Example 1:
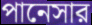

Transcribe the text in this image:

পানেসার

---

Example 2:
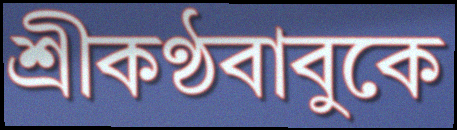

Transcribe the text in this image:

শ্রীকণ্ঠবাবুকে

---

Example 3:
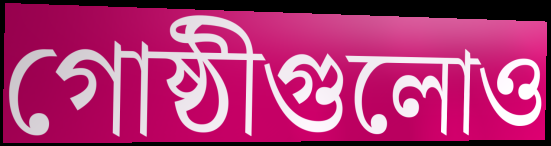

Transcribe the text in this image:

গোষ্ঠীগুলোও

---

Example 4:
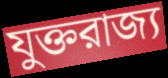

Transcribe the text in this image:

যুক্তরাজ্য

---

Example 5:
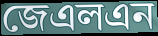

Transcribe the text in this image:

জেএলএন